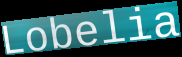
Lobelia